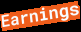
Earnings